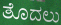
ತೊದಲು